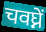
चवघ्नें